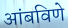
आंबविणे